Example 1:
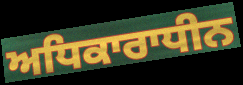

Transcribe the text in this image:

ਅਧਿਕਾਰਾਧੀਨ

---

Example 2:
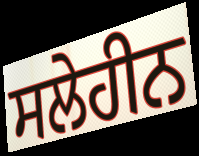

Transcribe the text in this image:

ਸਲੇਹੀਨ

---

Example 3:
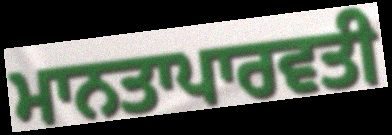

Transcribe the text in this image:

ਮਾਨਤਾਪਾਰਵਤੀ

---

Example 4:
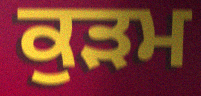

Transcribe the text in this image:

ਕੁੜਮ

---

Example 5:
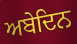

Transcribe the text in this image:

ਅਬੇਦਿਨ